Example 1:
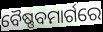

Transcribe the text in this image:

ବୈଷ୍ଣବମାର୍ଗରେ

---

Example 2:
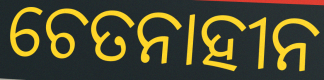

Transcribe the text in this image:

ଚେତନାହୀନ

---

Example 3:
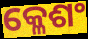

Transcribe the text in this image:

କ୍ଳେଶଂ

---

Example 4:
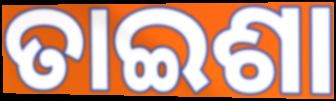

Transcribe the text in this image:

ତାଇଶା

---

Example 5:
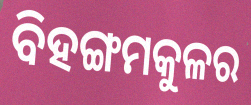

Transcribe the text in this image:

ବିହଙ୍ଗମକୁଳର